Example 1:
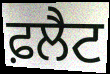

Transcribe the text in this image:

ਫ਼ਲੈਟ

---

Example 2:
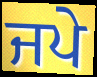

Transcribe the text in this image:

ਜਪੇ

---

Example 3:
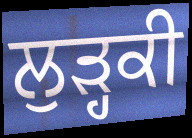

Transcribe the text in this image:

ਲੁੜ੍ਹਕੀ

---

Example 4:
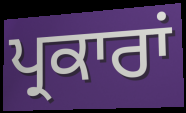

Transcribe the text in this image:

ਪ੍ਰਕਾਰਾਂ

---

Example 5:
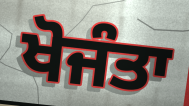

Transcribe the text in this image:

ਖੋਜੰਤਾ